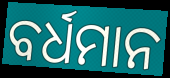
ବର୍ଧମାନ